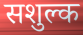
सशुल्क